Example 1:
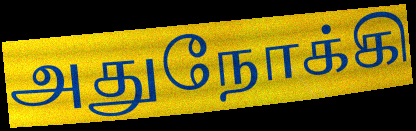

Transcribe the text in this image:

அதுநோக்கி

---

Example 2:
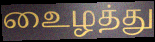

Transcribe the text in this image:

உைழத்து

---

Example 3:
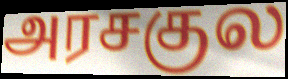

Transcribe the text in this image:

அரசகுல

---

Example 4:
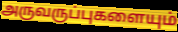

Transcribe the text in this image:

அருவருப்புகளையும்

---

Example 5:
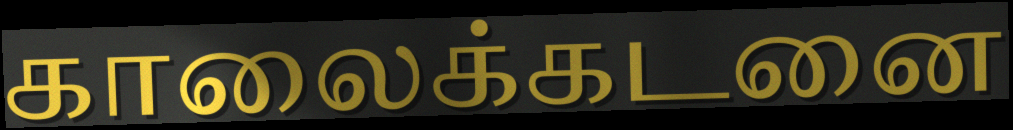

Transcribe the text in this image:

காலைக்கடனை